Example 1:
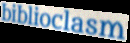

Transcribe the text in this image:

biblioclasm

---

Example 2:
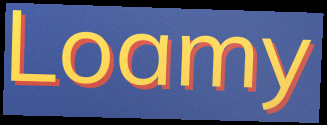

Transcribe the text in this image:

Loamy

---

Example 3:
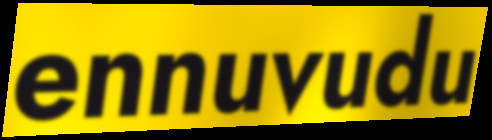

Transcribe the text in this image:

ennuvudu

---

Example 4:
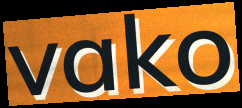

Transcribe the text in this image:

vako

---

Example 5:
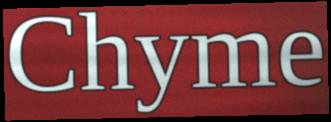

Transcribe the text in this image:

Chyme